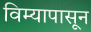
विम्यापासून